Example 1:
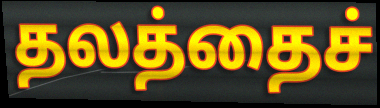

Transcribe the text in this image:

தலத்தைச்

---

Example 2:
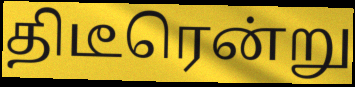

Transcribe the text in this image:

திடீரென்று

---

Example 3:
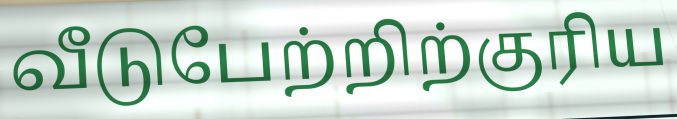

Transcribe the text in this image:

வீடுபேற்றிற்குரிய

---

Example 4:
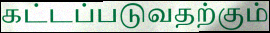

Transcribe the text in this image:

கட்டப்படுவதற்கும்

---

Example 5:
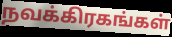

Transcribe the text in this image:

நவக்கிரகங்கள்